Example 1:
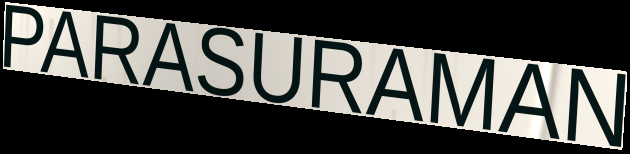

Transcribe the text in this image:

PARASURAMAN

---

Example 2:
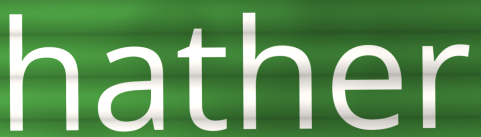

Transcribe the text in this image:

hather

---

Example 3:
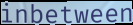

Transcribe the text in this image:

inbetween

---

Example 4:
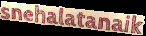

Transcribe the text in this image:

snehalatanaik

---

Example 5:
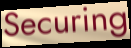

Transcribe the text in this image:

Securing